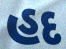
હદ